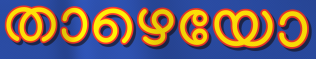
താഴെയോ